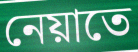
নেয়াতে